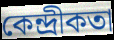
কেন্দ্রীকতা